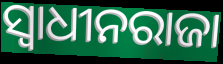
ସ୍ୱାଧୀନରାଜା